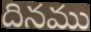
దినము